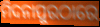
ମିଦନାପୁରଠାରେ